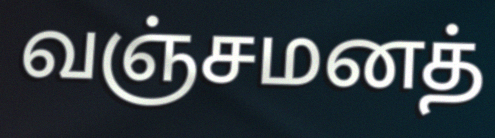
வஞ்சமனத்